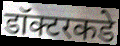
डॉक्टरकडे